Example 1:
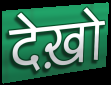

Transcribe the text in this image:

देख़ो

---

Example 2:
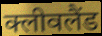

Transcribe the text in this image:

क्‍लीवलैंड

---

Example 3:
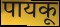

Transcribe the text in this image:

पायकू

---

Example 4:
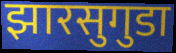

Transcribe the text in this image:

झारसुगुडा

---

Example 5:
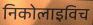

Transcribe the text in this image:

निकोलाइविच